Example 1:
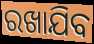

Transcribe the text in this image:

ରଖାଯିବ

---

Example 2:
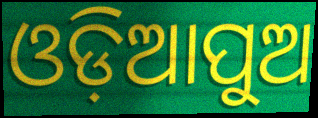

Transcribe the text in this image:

ଓଡ଼ିଆପୁଅ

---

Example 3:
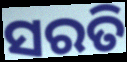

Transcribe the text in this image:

ସରତି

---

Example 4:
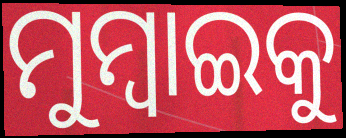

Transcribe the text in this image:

ମୁମ୍ବାଇକୁ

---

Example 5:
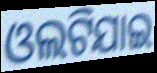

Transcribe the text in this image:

ଓଲଟିଯାଇ